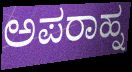
ಅಪರಾಹ್ನ